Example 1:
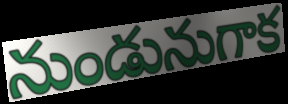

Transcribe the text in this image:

నుండునుగాక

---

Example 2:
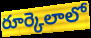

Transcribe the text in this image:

రూర్కెలాలో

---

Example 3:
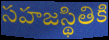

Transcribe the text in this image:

సహజస్థితికి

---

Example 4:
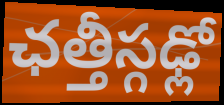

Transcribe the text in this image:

ఛత్తీస్గఢ్లో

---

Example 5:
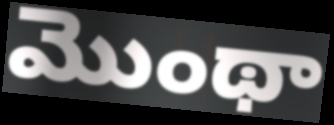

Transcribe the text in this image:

మొంథా